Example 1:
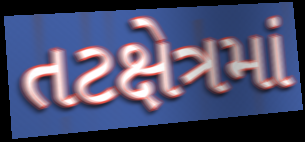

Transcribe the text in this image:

તટક્ષેત્રમાં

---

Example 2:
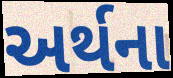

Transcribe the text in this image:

અર્થના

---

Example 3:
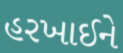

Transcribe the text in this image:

હરખાઈને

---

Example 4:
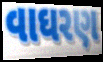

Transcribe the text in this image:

વાઘરણ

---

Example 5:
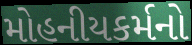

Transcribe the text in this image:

મોહનીયકર્મનો